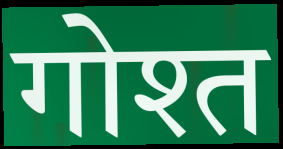
गोश्‍त